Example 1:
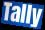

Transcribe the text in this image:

Tally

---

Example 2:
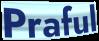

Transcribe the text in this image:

Praful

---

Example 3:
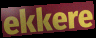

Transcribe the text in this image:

ekkere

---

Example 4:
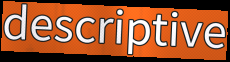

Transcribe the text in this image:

descriptive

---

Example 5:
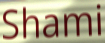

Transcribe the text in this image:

Shami